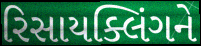
રિસાયક્લિંગને